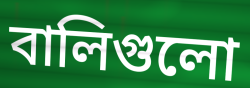
বালিগুলো